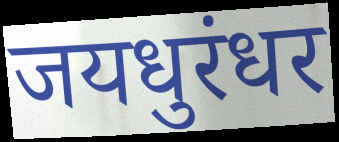
जयधुरंधर